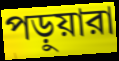
পড়ুয়ারা